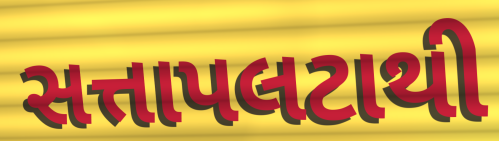
સત્તાપલટાથી